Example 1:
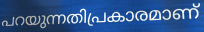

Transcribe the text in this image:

പറയുന്നതിപ്രകാരമാണ്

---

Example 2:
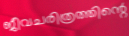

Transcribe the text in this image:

ജീവചരിത്രത്തിന്റെ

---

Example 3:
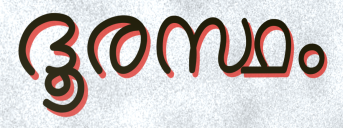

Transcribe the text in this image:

ദൂരസ്ഥം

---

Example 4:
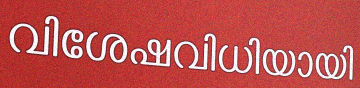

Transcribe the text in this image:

വിശേഷവിധിയായി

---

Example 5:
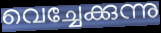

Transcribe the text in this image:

വെച്ചേക്കുന്നു